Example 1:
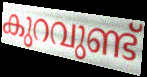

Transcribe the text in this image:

കുറവുണ്ട്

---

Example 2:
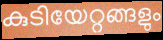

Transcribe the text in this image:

കുടിയേറ്റങ്ങളും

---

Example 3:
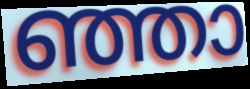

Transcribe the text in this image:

ഞ്ഞാ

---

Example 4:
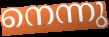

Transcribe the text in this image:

നെന്നു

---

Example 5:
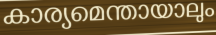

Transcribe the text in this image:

കാര്യമെന്തായാലും